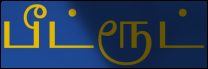
பீட்ரூட்